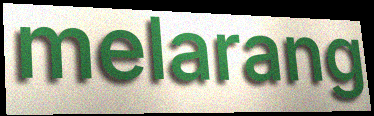
melarang